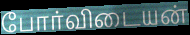
போர்விடையன்